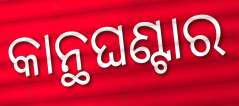
କାନ୍ଥଘଣ୍ଟାର